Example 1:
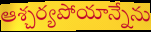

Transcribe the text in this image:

ఆశ్చర్యపోయాన్నేను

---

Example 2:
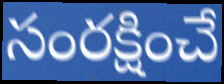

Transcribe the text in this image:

సంరక్షించే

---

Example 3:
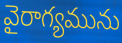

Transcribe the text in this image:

వైరాగ్యమును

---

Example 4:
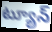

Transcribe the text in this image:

ట్యూన్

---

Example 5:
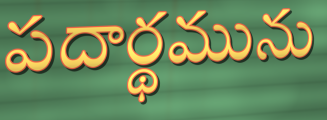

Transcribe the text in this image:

పదార్థమును